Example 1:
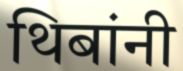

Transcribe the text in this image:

थिबांनी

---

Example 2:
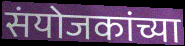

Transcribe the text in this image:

संयोजकांच्या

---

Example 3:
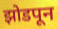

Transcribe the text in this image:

झोडपून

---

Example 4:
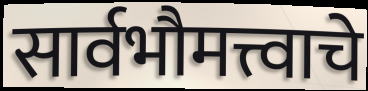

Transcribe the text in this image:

सार्वभौमत्त्वाचे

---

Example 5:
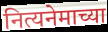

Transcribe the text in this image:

नित्यनेमाच्या